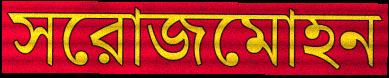
সরোজমোহন